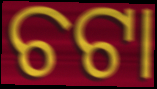
ଚଟା